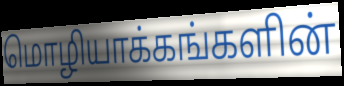
மொழியாக்கங்களின்